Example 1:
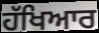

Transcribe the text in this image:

ਹੱਖਿਆਰ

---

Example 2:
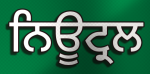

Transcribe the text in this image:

ਨਿਊਟ੍ਰਲ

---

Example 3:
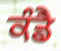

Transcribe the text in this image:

ਕੰਡੈ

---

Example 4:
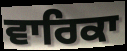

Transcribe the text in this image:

ਵਾਰਿਕਾ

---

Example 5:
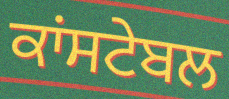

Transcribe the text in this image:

ਕਾਂਸਟੇਬਲ